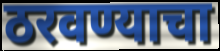
ठरवण्याचा